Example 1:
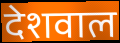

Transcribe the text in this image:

देशवाल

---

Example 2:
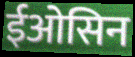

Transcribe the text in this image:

ईओसिन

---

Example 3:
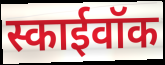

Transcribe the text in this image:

स्काईवॉक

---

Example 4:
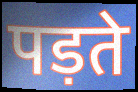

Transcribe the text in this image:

पड़ते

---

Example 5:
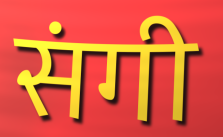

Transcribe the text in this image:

संगी